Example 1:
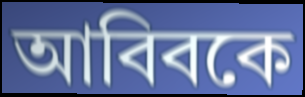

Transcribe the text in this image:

আবিবকে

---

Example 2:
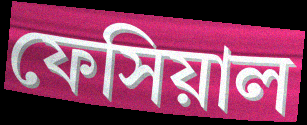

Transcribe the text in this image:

ফেসিয়াল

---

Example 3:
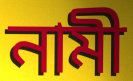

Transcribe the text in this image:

নামী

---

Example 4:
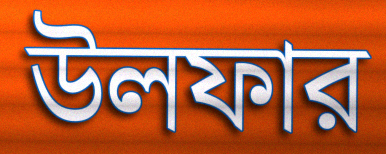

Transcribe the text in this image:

উলফার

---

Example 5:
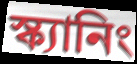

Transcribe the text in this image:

স্ক্যানিং